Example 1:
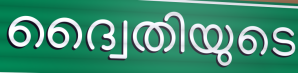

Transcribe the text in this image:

ദ്വൈതിയുടെ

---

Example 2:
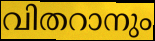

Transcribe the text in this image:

വിതറാനും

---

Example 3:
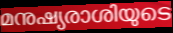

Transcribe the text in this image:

മനുഷ്യരാശിയുടെ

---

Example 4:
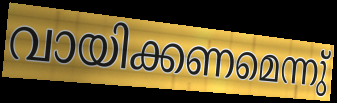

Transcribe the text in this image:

വായിക്കണമെന്നു്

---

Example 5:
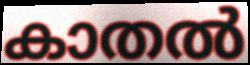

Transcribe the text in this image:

കാതൽ